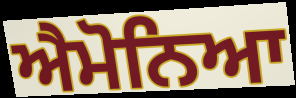
ਐਮੋਨਿਆ